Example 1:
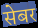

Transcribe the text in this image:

सेबर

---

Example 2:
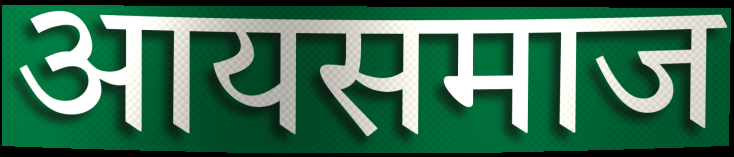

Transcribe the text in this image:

आयसमाज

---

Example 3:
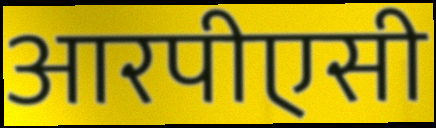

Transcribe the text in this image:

आरपीएसी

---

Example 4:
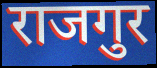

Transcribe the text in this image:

राजगुर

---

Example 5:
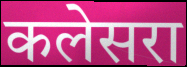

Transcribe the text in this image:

कलेसरा